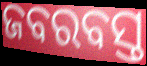
ଜବରବସ୍ତ